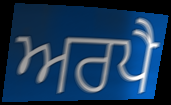
ਅਰਪੈ